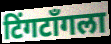
टिंगटॉंगला